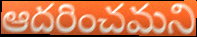
ఆదరించమని